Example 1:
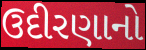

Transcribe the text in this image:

ઉદીરણાનો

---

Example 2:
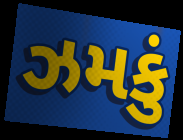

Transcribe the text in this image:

ઝમકું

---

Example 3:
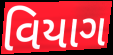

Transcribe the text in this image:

વિયાગ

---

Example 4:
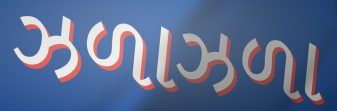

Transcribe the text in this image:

ઝળાઝળા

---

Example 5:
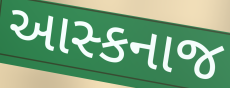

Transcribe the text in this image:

આસ્કનાજ